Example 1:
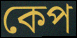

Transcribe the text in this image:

কেপ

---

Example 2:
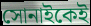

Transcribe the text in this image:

সোনাইকেই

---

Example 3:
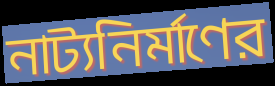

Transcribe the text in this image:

নাট্যনির্মাণের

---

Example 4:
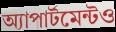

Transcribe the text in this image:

অ্যাপার্টমেন্টও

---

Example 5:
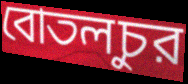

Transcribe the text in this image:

বোতলচুর